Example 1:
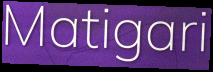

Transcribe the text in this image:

Matigari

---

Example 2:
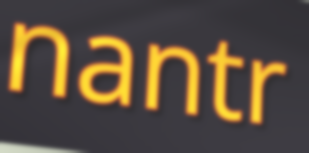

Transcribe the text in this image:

nantr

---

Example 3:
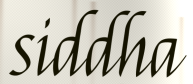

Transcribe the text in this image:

siddha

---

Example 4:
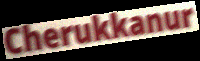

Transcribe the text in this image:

Cherukkanur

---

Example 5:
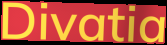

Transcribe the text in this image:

Divatia